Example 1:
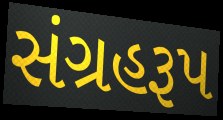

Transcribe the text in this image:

સંગ્રહરૂપ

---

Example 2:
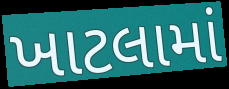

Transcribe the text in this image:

ખાટલામાં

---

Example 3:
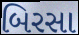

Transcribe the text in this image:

બિરસા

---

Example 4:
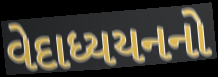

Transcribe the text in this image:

વેદાધ્યયનનો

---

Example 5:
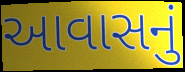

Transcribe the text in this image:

આવાસનું